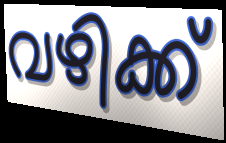
വഴിക്ക്